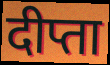
दीप्ता